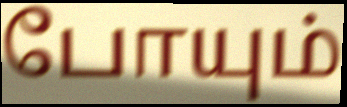
போயும்